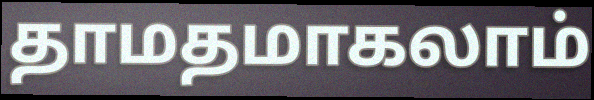
தாமதமாகலாம்